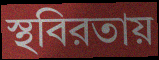
স্থবিরতায়